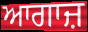
ਆਗਾਜ਼